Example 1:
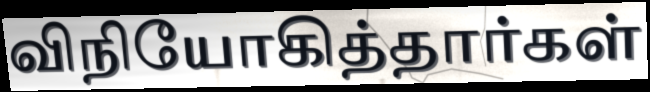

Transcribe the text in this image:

விநியோகித்தார்கள்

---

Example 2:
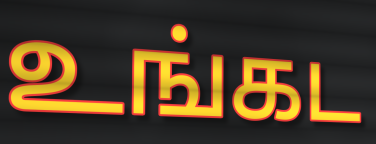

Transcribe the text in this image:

உங்கட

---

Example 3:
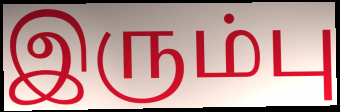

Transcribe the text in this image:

இரும்பு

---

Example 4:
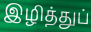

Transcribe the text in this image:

இழித்துப்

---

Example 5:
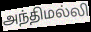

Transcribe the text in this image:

அந்திமல்லி